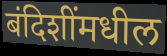
बंदिशींमधील